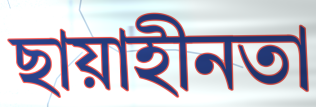
ছায়াহীনতা